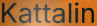
Kattalin